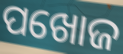
ପଖୋଜ